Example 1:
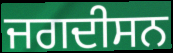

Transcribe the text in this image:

ਜਗਦੀਸਨ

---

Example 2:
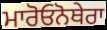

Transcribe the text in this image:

ਮਾਰੋਓਨੋਥੇਰਾ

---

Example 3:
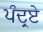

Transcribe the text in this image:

ਪੰਦ੍ਰਏ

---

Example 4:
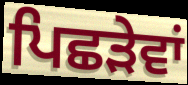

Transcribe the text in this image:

ਪਿਛੜੇਵਾਂ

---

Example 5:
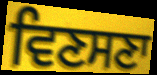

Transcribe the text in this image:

ਵਿਣਸਣਾ